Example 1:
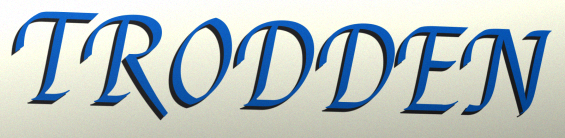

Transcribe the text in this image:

TRODDEN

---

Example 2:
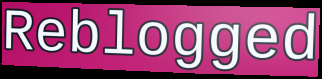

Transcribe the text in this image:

Reblogged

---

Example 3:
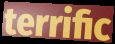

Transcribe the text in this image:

terrific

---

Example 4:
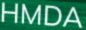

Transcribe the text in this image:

HMDA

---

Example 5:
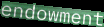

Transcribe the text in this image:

endowment